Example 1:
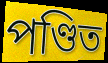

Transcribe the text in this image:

পণ্ডিত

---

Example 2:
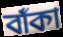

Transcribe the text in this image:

বাঁকা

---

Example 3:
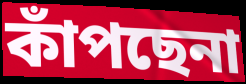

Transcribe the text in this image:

কাঁপছেনা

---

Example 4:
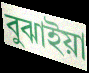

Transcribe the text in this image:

বুঝাইয়া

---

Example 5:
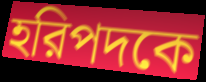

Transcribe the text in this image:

হরিপদকে